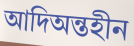
আদিঅন্তহীন